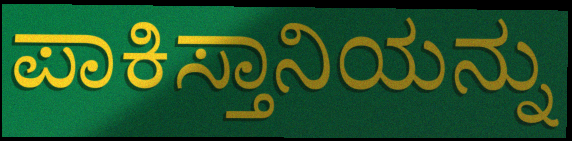
ಪಾಕಿಸ್ತಾನಿಯನ್ನು